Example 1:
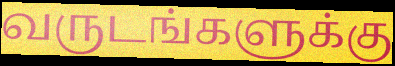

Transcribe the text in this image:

வருடங்களுக்கு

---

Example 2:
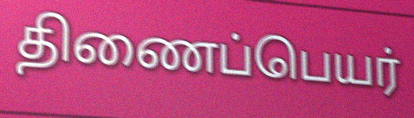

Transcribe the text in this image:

திணைப்பெயர்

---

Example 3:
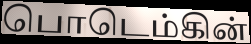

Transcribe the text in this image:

பொடெம்கின்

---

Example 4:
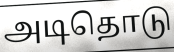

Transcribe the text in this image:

அடிதொடு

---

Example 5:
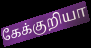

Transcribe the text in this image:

கேக்குறியா